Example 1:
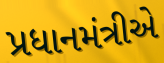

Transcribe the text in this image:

પ્રધાનમંત્રીએ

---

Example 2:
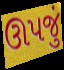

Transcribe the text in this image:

ઊપજું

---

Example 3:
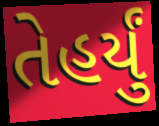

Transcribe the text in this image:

તેહર્યું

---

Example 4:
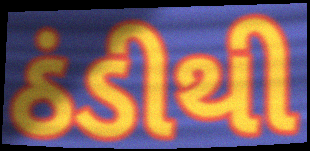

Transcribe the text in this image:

ઠંડીથી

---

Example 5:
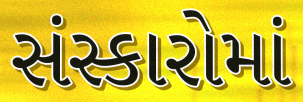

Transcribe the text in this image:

સંસ્કારોમાં